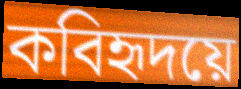
কবিহৃদয়ে